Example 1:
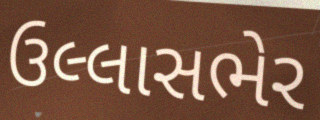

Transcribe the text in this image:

ઉલ્લાસભેર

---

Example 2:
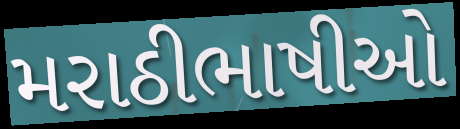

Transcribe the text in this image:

મરાઠીભાષીઓ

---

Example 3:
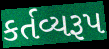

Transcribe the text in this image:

કર્તવ્યરૂપ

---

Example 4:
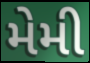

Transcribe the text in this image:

મેમી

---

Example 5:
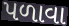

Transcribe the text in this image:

પળાવા